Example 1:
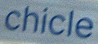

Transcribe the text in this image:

chicle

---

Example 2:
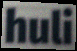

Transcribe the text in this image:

huli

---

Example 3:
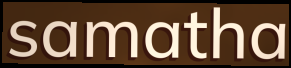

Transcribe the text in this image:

samatha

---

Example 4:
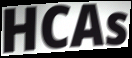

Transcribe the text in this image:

HCAs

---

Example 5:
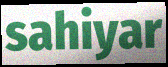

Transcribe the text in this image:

sahiyar